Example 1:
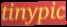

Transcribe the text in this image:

tinypic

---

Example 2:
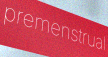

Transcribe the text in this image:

premenstrual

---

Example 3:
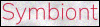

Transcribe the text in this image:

Symbiont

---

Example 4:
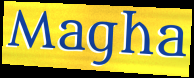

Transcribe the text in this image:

Magha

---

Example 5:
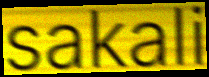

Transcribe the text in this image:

sakali